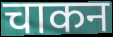
चाकन